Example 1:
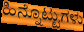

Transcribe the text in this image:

ಹಿನ್ನೊಟ್ಟುಗಳು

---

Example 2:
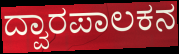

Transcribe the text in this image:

ದ್ವಾರಪಾಲಕನ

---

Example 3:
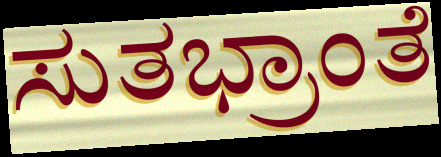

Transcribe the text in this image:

ಸುತಭ್ರಾಂತೆ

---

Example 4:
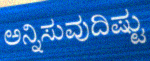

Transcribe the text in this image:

ಅನ್ನಿಸುವುದಿಷ್ಟು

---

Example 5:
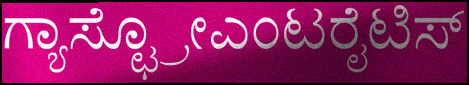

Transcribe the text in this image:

ಗ್ಯಾಸ್ಟ್ರೋಎಂಟರೈಟಿಸ್